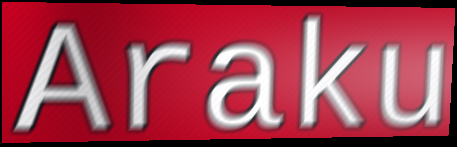
Araku